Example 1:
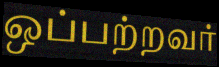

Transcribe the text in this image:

ஒப்பற்றவர்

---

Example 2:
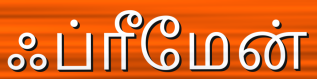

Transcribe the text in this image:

ஃப்ரீமேன்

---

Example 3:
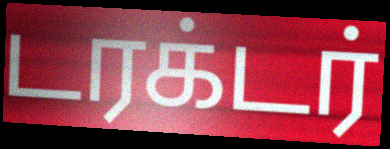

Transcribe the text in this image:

டரக்டர்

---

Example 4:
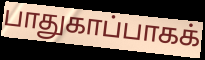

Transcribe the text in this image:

பாதுகாப்பாகக்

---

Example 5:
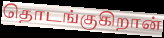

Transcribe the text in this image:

தொடங்குகிறான்